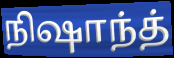
நிஷாந்த்